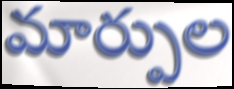
మార్పుల